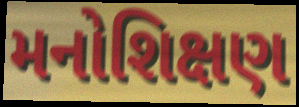
મનોશિક્ષણ